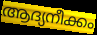
ആദ്യനീക്കം